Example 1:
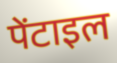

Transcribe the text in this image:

पेंटाइल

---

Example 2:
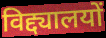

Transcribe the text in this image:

विद्द्यालयों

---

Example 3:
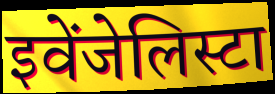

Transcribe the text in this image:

इवेंजेलिस्टा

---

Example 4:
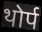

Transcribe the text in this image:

थोर्प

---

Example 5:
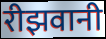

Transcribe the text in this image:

रीझवानी